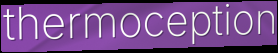
thermoception